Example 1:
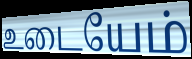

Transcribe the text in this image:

உடையேம்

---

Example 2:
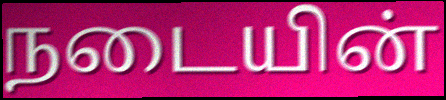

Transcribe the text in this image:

நடையின்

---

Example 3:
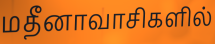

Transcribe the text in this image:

மதீனாவாசிகளில்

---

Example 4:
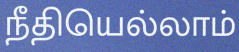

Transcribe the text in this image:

நீதியெல்லாம்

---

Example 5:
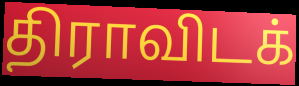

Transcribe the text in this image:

திராவிடக்